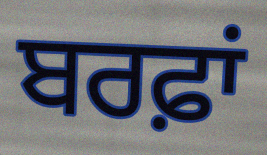
ਬਰਫ਼ਾਂ